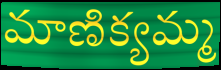
మాణిక్యమ్మ